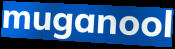
muganool